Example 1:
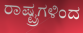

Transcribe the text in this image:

ರಾಷ್ಟ್ರಗಳಿಂದ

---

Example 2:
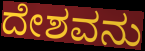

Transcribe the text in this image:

ದೇಶವನು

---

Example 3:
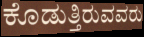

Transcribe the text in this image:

ಕೊಡುತ್ತಿರುವವರು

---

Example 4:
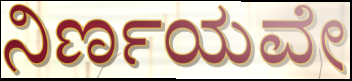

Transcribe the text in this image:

ನಿರ್ಣಯವೇ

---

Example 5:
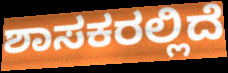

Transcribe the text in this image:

ಶಾಸಕರಲ್ಲಿದೆ